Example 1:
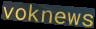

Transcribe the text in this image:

voknews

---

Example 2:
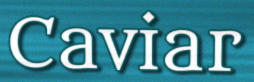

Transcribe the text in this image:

Caviar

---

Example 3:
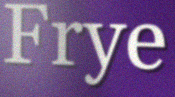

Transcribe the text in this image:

Frye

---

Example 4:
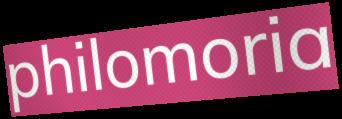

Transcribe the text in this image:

philomoria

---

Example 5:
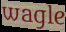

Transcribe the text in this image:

wagle